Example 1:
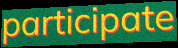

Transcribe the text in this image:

participate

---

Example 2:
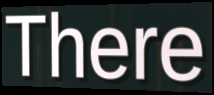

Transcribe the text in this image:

There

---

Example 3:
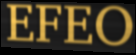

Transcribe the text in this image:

EFEO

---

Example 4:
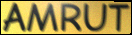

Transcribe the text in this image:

AMRUT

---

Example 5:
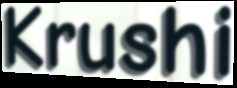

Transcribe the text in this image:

Krushi